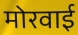
मोरवाई